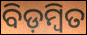
ବିଡ଼ମ୍ଵିତ